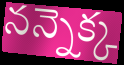
నన్నెక్క